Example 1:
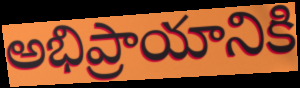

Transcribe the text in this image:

అభిప్రాయానికి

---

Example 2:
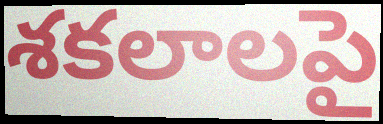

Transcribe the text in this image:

శకలాలపై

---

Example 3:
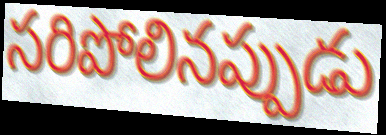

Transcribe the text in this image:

సరిపోలినప్పుడు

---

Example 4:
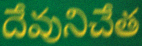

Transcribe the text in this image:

దేవునిచేత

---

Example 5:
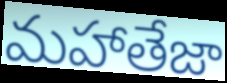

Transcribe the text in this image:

మహాతేజా